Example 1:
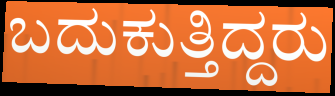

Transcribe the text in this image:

ಬದುಕುತ್ತಿದ್ದರು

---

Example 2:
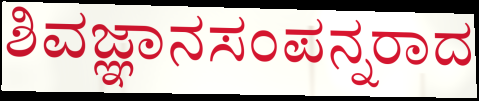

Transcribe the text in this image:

ಶಿವಜ್ಞಾನಸಂಪನ್ನರಾದ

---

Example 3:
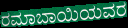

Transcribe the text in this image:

ರಮಾಬಾಯಿಯವರ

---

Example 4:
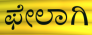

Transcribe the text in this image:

ಫೇಲಾಗಿ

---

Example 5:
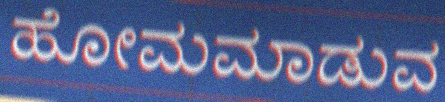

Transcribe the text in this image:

ಹೋಮಮಾಡುವ